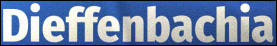
Dieffenbachia